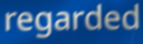
regarded